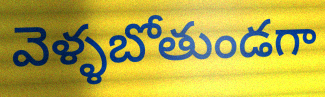
వెళ్ళబోతుండగా